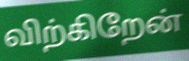
விற்கிறேன்